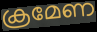
ക്രമേണ